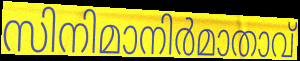
സിനിമാനിർമാതാവ്